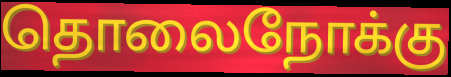
தொலைநோக்கு